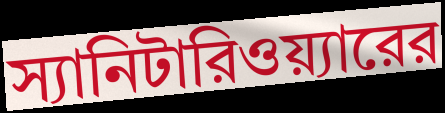
স্যানিটারিওয়্যারের